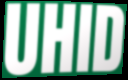
UHID